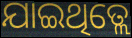
ଯାଇଥିତ୍ଲେ